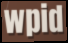
wpid